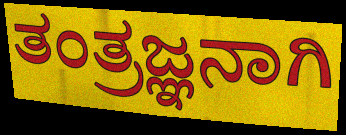
ತಂತ್ರಜ್ಞನಾಗಿ